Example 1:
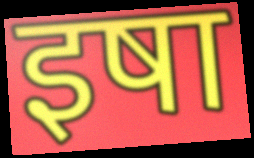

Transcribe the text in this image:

इषा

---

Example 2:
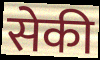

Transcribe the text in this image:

सेकी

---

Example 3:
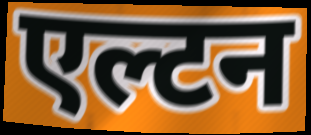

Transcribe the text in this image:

एल्टन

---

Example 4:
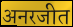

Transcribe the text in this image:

अनरजीत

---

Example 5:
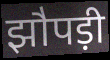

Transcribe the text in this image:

झौपड़ी